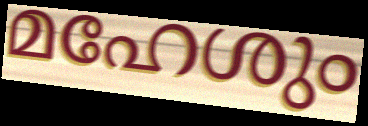
മഹേശും